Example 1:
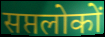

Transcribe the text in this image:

सप्तलोकों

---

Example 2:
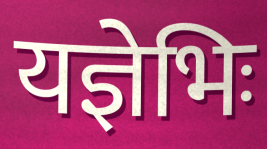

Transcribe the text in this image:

यज्ञेभिः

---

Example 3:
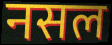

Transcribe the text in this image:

नसल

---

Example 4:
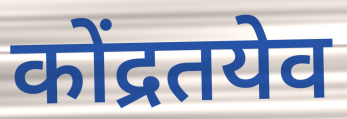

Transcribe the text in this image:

कोंद्रतयेव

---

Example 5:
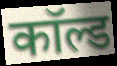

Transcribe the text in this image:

कॉल्ड